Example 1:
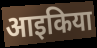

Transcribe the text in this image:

आइकिया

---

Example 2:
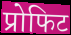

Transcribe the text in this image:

प्रोफिट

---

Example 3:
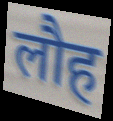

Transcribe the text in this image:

लौह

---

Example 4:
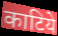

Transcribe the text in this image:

काटिये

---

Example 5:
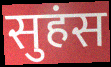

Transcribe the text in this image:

सुहंस